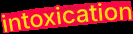
intoxication